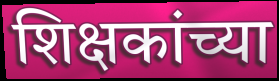
शिक्षकांच्‍या